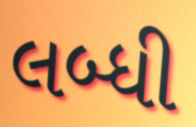
લબ્ધી